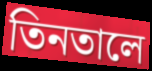
তিনতালে